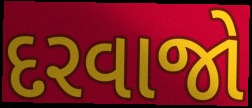
દરવાજો